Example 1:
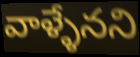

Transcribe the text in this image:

వాళ్ళేనని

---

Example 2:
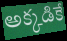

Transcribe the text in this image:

అక్కడికే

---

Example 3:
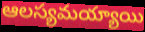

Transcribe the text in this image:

ఆలస్యమయ్యాయి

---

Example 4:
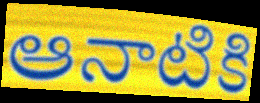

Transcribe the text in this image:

ఆనాటికి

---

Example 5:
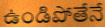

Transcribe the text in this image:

ఉండిపోతేనే